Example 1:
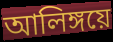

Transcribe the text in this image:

আলিঙ্গয়ে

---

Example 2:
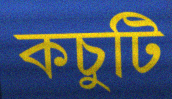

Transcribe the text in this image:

কচুটি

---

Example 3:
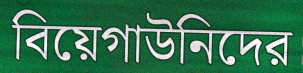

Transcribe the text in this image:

বিয়েগাউনিদের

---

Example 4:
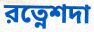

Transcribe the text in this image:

রত্নেশদা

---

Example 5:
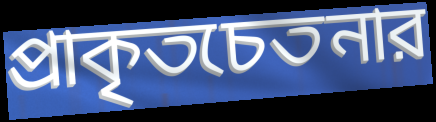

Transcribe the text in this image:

প্রাকৃতচেতনার